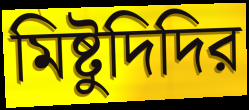
মিষ্টুদিদির